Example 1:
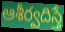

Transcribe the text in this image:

ఆశీర్వదిస్తే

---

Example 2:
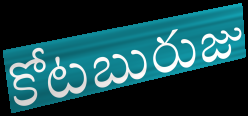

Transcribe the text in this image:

కోటబురుజు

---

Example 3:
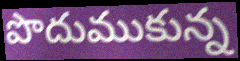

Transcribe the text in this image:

పొదుముకున్న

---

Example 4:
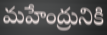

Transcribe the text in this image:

మహేంద్రునికి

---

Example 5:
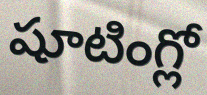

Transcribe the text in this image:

షూటింగ్లో